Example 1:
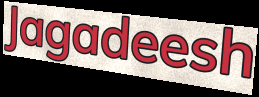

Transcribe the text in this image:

Jagadeesh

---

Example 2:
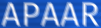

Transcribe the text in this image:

APAAR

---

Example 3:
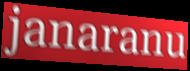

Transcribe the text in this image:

janaranu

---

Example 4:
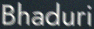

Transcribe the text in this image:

Bhaduri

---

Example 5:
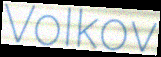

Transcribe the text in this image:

Volkov